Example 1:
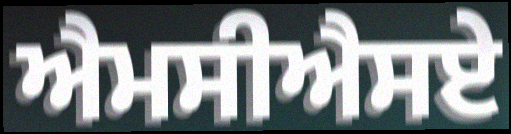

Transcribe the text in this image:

ਐਮਸੀਐਸਏ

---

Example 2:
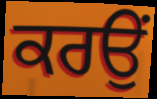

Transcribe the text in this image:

ਕਰਉਂ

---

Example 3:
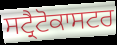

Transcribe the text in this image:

ਸਟ੍ਰੈਟੋਕਾਸਟਰ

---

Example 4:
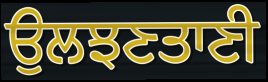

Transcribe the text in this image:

ਉਲਝਣਤਾਣੀ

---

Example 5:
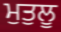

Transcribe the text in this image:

ਮੁਤੁਲੂ